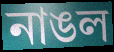
নাঙল